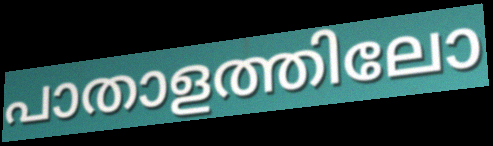
പാതാളത്തിലോ